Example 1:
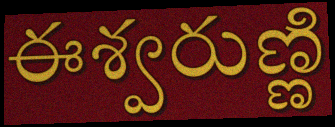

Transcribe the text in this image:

ఈశ్వరుణ్ణి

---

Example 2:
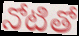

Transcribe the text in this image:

నోటితో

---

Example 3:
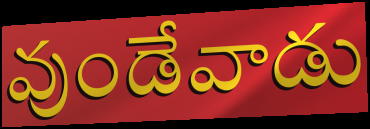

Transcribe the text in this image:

వుండేవాడు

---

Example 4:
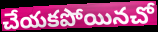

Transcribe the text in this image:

చేయకపోయినచో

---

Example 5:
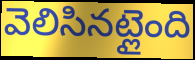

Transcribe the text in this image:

వెలిసినట్లైంది